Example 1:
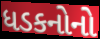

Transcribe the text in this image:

ધડકનોનો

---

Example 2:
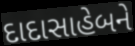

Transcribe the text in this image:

દાદાસાહેબને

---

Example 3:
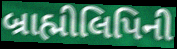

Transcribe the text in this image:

બ્રાહ્મીલિપિની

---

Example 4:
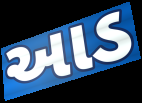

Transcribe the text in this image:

આડ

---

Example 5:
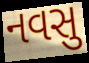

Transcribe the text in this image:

નવસુ